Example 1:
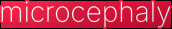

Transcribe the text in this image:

microcephaly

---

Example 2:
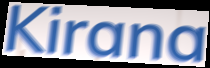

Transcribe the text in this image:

Kirana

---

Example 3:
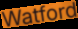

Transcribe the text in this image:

Watford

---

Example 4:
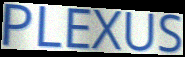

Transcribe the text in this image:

PLEXUS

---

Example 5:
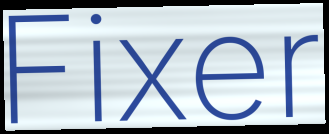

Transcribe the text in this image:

Fixer